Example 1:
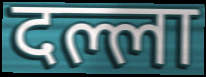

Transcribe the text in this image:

दल्ला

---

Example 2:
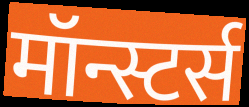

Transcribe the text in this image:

मॉन्स्टर्स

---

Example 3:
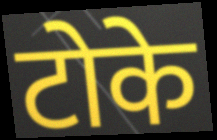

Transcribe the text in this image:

टोके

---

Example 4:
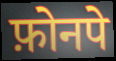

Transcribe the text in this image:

फ़ोनपे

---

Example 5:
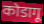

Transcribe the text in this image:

कोडागू